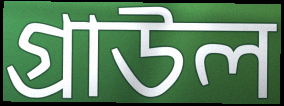
গ্রাউল